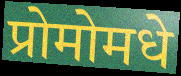
प्रोमोमधे